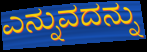
ಎನ್ನುವದನ್ನು